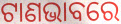
ଟାଣଭାବରେ